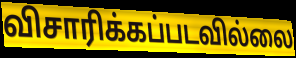
விசாரிக்கப்படவில்லை